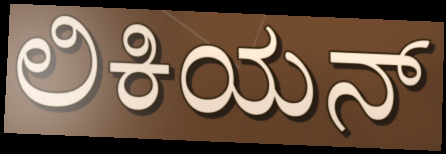
ಲಿಕಿಯನ್